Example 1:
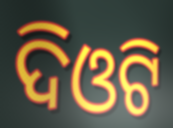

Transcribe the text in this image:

ଦିଓଟି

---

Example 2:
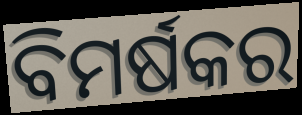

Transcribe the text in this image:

ବିମର୍ଷକର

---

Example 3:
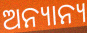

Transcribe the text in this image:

ଅନ୍ୟାନ୍ୟ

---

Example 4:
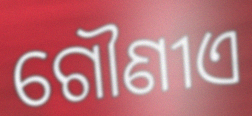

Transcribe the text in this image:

ଗୌଣୀଏ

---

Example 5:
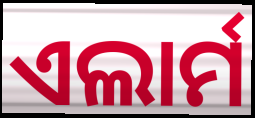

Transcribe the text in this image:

ଏଲାର୍ମ